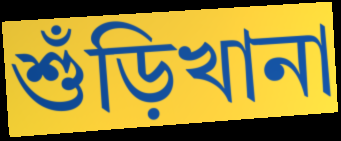
শুঁড়িখানা